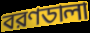
বরণডালা